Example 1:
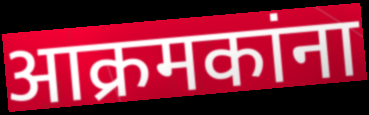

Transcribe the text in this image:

आक्रमकांना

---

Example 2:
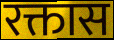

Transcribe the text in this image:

रक्तास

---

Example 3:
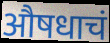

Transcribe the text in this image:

औषधाचं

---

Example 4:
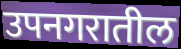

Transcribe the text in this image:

उपनगरातील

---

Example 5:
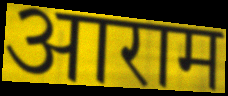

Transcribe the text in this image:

आराम